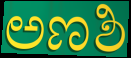
ಅಣಶಿ